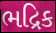
ભદ્રિક